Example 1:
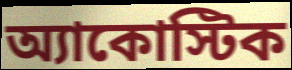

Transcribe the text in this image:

অ্যাকোস্টিক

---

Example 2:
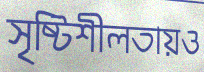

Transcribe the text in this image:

সৃষ্টিশীলতায়ও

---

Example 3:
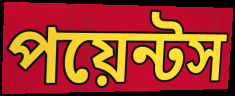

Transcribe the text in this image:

পয়েন্টস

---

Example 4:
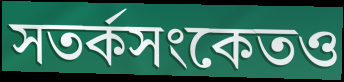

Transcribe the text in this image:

সতর্কসংকেতও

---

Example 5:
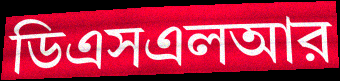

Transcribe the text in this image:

ডিএসএলআর